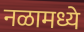
नळामध्ये